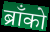
ब्राँको